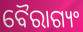
ବୈରାଗ୍ୟଂ